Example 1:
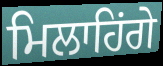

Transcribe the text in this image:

ਮਿਲਾਹਿਂਗੇ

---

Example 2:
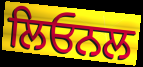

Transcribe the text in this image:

ਲਿਓਨਲ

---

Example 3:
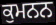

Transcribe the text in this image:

ਕੁਮਨਨ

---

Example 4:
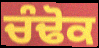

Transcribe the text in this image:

ਚੰਢੋਕ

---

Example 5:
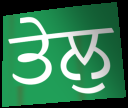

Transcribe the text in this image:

ਤੇਲੁ